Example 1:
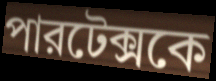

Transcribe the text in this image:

পারটেক্সকে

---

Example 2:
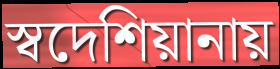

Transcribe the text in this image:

স্বদেশিয়ানায়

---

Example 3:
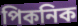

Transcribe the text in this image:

পিকনিক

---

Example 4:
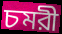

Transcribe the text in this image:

চমরী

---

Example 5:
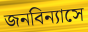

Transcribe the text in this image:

জনবিন্যাসে